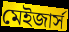
মেইজার্স